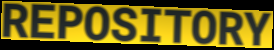
REPOSITORY